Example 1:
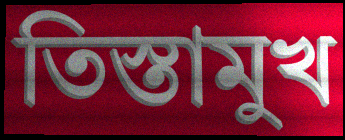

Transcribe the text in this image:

তিস্তামুখ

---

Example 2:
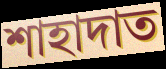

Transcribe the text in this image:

শাহাদাত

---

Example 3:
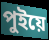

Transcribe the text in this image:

পুইয়ে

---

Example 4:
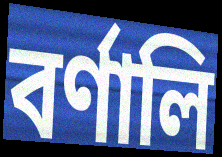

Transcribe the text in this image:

বর্ণালি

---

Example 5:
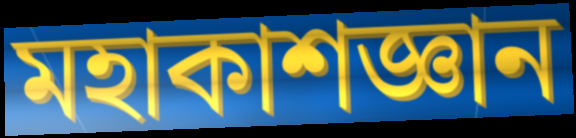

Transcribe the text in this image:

মহাকাশজ্ঞান